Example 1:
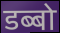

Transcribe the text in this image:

डब्बो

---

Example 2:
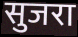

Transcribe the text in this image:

सुजरा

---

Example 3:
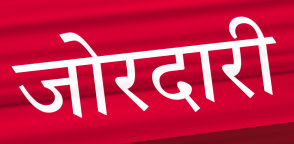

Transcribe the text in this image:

जोरदारी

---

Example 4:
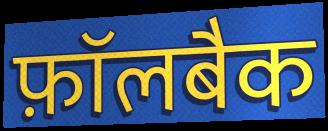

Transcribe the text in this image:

फ़ॉलबैक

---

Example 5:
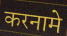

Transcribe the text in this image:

करनामे